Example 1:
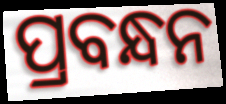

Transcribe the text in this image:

ପ୍ରବନ୍ଧନ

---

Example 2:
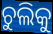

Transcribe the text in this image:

ଚୁଲିକୁ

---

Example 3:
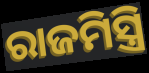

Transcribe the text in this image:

ରାଜମିସ୍ତ୍ରି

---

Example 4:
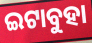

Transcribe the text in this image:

ଇଟାବୁହା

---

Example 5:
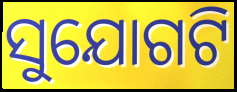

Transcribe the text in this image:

ସୁଯୋଗଟି